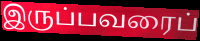
இருப்பவரைப்